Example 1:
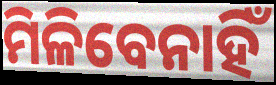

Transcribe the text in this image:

ମିଳିବେନାହିଁ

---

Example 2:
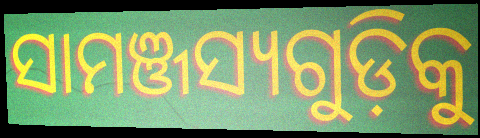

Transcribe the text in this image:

ସାମଞ୍ଜସ୍ୟଗୁଡ଼ିକୁ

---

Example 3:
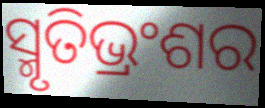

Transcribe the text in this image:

ସ୍ମୃତିଭ୍ରଂଶର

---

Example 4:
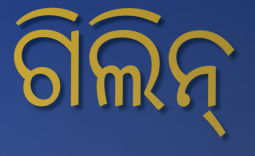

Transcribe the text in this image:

ଗିଲିନ୍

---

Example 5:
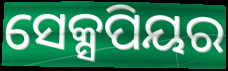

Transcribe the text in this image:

ସେକ୍ସପିୟର